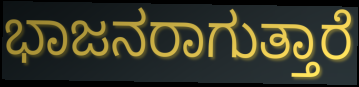
ಭಾಜನರಾಗುತ್ತಾರೆ